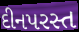
દીનપરસ્ત